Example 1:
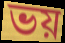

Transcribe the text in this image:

ভয়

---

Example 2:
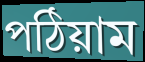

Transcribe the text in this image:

পঠিয়াম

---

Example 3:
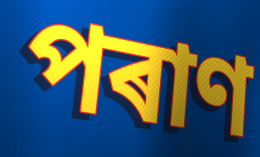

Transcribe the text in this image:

পৰাণ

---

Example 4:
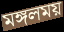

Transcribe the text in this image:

মঙ্গলময়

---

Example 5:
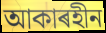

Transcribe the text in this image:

আকাৰহীন